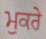
ਮੁਕਰੇ